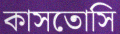
কাসতোসি